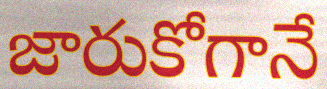
జారుకోగానే